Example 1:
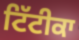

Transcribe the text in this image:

ਟਿੱਟੀਕਾ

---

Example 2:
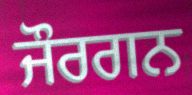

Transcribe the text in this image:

ਜੌਰਗਨ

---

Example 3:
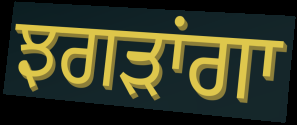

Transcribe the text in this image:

ਝਗੜਾਂਗਾ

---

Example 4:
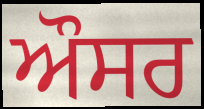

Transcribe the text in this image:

ਔਸਰ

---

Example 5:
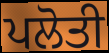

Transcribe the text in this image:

ਪਲੋਤੀ